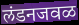
लंडनजवळ